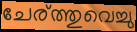
ചേര്ത്തുവെച്ചു